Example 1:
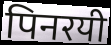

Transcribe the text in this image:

पिनरयी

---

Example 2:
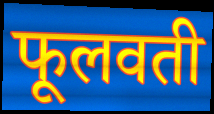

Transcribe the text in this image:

फूलवती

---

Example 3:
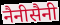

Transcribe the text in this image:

नैनीसैनी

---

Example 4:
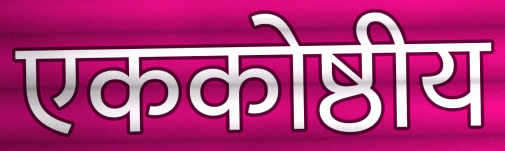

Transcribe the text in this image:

एककोष्ठीय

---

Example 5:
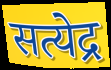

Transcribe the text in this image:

सत्येद्र